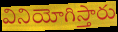
వినియోగిస్తారు